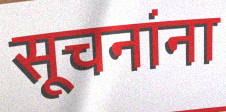
सूचनांना